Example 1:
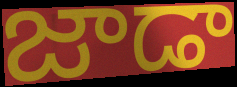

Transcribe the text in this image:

జాడా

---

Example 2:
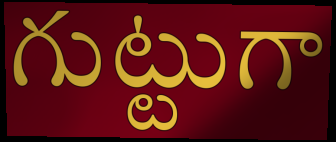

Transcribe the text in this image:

గుట్టుగా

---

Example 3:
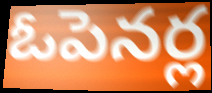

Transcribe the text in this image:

ఓపెనర్ల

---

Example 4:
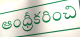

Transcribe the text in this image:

ఆంధ్రీకరించి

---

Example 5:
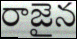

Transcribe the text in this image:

రాజైన